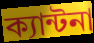
ক্যান্টনা